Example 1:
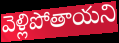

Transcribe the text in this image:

వెళ్లిపోతాయని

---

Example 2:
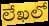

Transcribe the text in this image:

లేఖలో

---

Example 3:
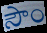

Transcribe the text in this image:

సౌం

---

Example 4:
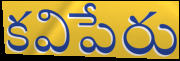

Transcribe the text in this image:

కవిపేరు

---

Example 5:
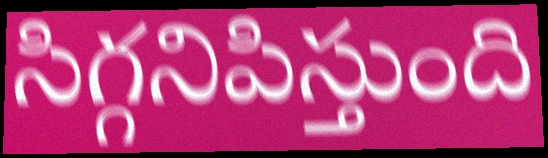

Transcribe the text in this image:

సిగ్గనిపిస్తుంది